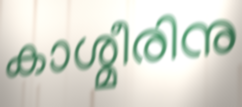
കാശ്മീരിനു